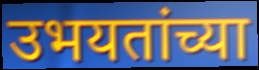
उभयतांच्या